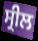
ਸ੍ਰੀਲ